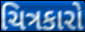
ચિત્રકારો